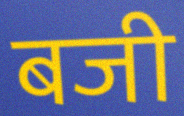
बजी